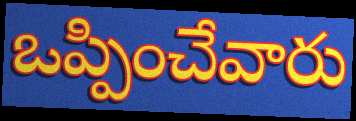
ఒప్పించేవారు